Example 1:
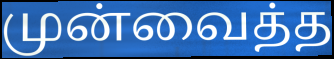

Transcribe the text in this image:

முன்வைத்த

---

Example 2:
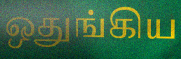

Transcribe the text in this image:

ஒதுங்கிய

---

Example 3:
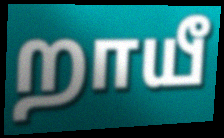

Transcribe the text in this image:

றாயீ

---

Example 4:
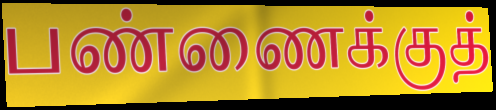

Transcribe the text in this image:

பண்ணைக்குத்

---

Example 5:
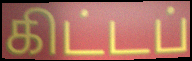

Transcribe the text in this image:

கிட்டப்